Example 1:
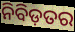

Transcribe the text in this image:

ନିବିଡ଼ତର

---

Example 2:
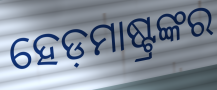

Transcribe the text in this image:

ହେଡ଼ମାଷ୍ଟ୍ରଙ୍କର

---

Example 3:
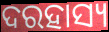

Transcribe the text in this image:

ଦରହାସ୍ୟ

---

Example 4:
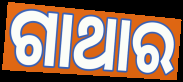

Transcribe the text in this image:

ଗାଥାର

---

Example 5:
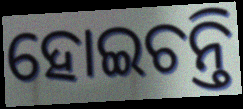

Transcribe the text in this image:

ହୋଇଚନ୍ତି